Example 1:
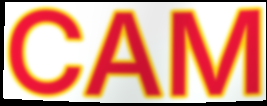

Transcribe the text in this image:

CAM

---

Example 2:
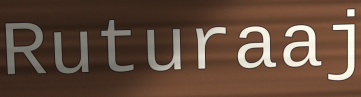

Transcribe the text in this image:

Ruturaaj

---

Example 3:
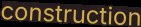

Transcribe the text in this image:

construction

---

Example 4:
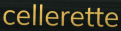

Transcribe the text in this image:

cellerette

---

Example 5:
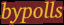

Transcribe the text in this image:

bypolls